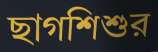
ছাগশিশুর